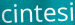
cintesi